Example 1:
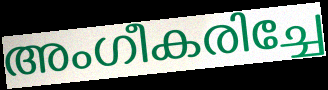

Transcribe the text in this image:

അംഗീകരിച്ചേ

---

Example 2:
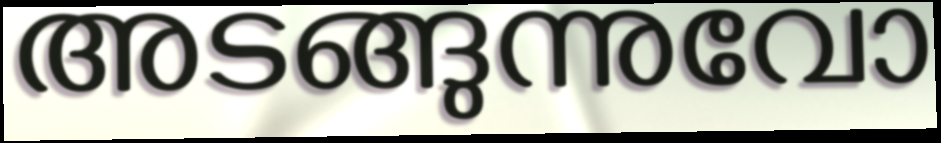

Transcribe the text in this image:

അടങ്ങുന്നുവോ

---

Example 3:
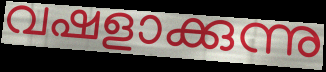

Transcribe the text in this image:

വഷളാക്കുന്നു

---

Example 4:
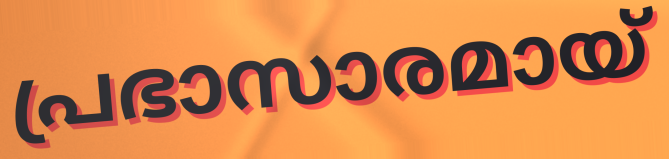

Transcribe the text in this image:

പ്രഭാസാരമായ്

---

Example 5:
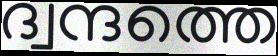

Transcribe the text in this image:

ദ്വന്ദത്തെ